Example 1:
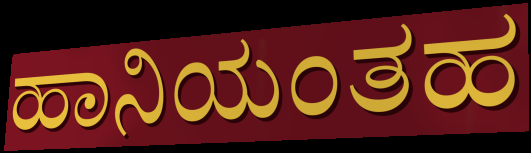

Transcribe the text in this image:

ಹಾನಿಯಂತಹ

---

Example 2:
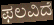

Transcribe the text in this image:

ಫಲವಿದೆ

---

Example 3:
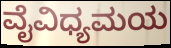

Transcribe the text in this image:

ವೈವಿಧ್ಯಮಯ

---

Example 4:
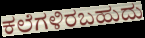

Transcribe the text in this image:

ಕಲೆಗಳಿರಬಹುದು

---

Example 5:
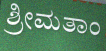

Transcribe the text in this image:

ಶ್ರೀಮತಾಂ